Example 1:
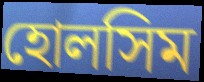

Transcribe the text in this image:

হোলসিম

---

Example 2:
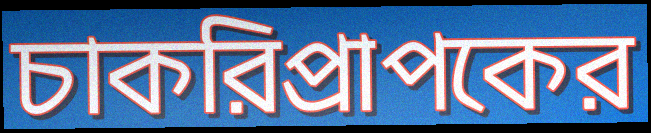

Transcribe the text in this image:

চাকরিপ্রাপকের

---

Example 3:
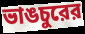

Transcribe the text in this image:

ভাঙচুরের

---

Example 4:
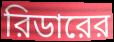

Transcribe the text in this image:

রিডারের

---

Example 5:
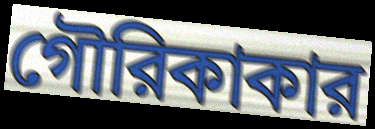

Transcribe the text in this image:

গৌরিকাকার